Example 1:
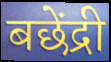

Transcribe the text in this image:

बछेंद्री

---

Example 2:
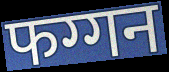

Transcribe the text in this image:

फग्‍गन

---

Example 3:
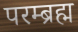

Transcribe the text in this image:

परम्ब्रह्म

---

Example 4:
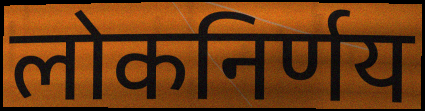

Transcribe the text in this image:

लोकनिर्णय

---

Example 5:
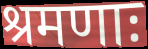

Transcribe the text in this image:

श्रमणाः